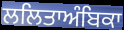
ਲਲਿਤਾਅੰਬਿਕਾ